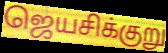
ஜெயசிக்குறு